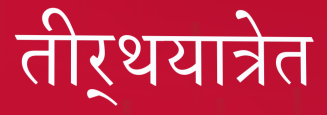
तीर्थयात्रेत